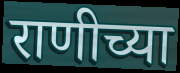
राणीच्या